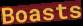
Boasts